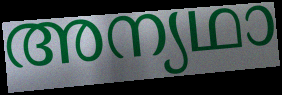
അന്യഥാ